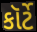
કૉર્ટે